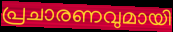
പ്രചാരണവുമായി